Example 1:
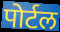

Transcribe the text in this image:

पोर्टल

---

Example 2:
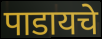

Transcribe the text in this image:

पाडायचे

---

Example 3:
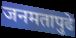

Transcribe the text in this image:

जनमतापुढे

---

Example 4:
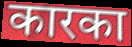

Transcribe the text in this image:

कारका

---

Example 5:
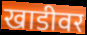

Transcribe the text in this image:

खाडीवर